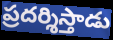
ప్రదర్శిస్తాడు